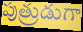
పుత్రుడుగా